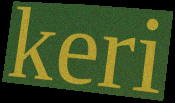
keri